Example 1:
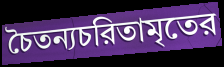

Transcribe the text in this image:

চৈতন্যচরিতামৃতের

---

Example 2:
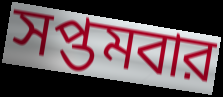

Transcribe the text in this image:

সপ্তমবার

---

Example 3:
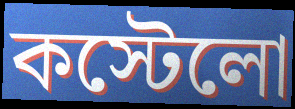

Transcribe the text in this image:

কস্টেলো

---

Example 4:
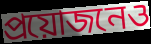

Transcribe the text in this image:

প্রয়োজনেও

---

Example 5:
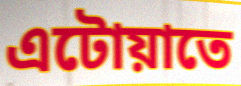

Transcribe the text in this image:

এটোয়াতে